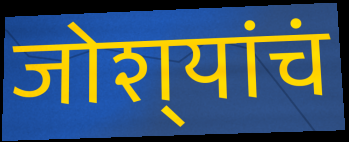
जोश्यांचं